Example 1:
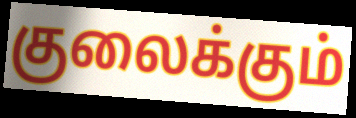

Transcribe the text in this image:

குலைக்கும்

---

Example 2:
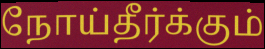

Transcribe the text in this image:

நோய்தீர்க்கும்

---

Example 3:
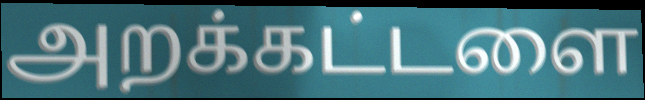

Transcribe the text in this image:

அறக்கட்டளை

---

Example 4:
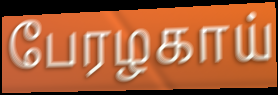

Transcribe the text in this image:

பேரழகாய்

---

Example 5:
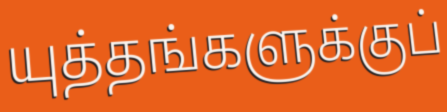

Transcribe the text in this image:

யுத்தங்களுக்குப்